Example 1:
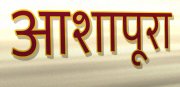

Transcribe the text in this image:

आशापूरा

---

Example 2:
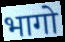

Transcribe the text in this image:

भागो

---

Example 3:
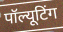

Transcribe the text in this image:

पॉल्यूटिंग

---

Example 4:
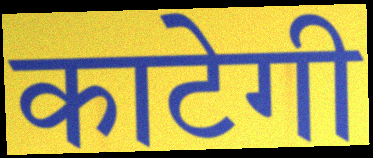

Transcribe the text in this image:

काटेगी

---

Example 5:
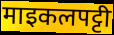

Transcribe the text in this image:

माइकलपट्टी